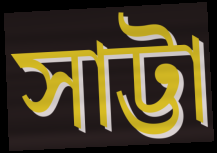
সাট্টা